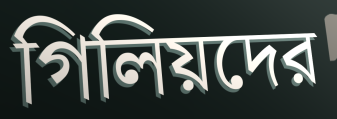
গিলিয়দের